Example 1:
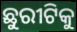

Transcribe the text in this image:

ଛୁରୀଟିକୁ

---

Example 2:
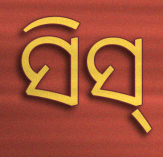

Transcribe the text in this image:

ସିସ୍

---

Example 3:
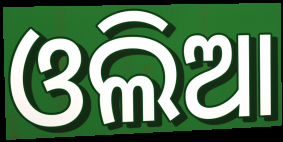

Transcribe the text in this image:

ଓଲିଆ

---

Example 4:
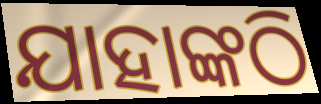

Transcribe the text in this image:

ଯାହାଙ୍କଠି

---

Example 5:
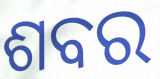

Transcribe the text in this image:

ଶବର